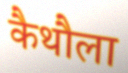
कैथौला